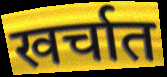
खर्चात